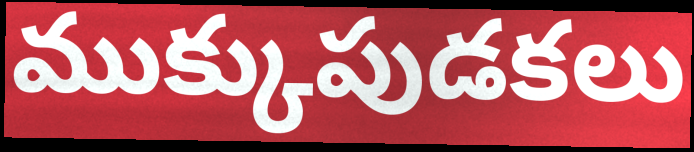
ముక్కుపుడకలు